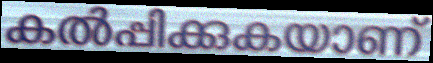
കൽപ്പിക്കുകയാണ്